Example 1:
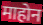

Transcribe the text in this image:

माहोन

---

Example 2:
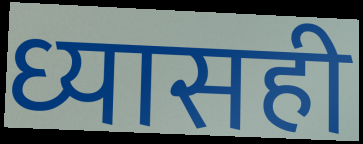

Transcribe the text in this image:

ध्यासही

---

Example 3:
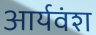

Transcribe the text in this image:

आर्यवंश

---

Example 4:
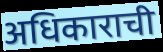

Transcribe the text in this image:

अधिकाराची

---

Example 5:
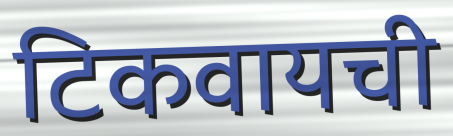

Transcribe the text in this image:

टिकवायची